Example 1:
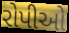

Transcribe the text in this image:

રોપીઓ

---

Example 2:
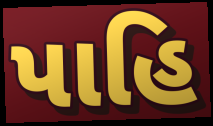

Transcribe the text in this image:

પાહિ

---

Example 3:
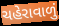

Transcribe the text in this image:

ચહેરાવાળું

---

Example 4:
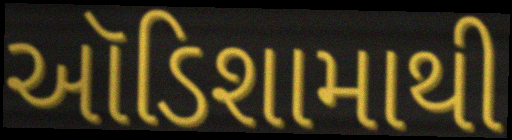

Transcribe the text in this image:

ઑડિશામાથી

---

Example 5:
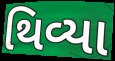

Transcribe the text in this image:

થિવ્યા